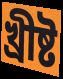
খ্ৰীষ্ট